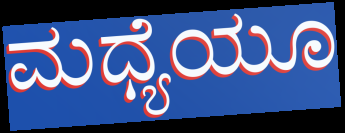
ಮಧ್ಯೆಯೂ